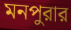
মনপুরার